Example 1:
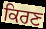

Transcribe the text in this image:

ਕਿਰਣ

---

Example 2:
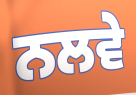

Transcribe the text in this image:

ਨਲਵੇ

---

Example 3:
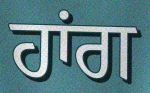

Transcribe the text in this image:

ਹਾਂਗ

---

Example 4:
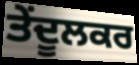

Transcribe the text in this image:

ਤੇਂਦੂਲਕਰ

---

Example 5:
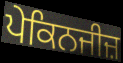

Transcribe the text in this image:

ਪੇਕਿਨਜੀਜ਼